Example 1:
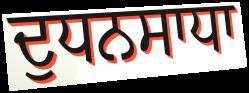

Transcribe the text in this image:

ਦੁਧਨਸਾਧਾ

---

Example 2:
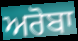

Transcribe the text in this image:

ਅਰੋਬਾ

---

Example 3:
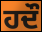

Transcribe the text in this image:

ਹਦੌ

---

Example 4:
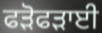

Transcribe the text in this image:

ਫੜੋਫੜਾਈ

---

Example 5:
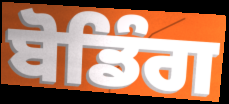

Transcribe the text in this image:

ਬੋਡਿੰਗ